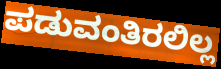
ಪಡುವಂತಿರಲಿಲ್ಲ